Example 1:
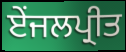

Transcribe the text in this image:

ਏਂਜਲਪ੍ਰੀਤ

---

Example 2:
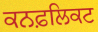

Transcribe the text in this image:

ਕਨਫ਼ਲਿਕਟ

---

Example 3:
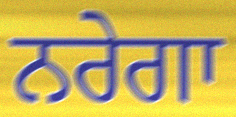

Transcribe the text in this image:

ਨਰੇਗਾ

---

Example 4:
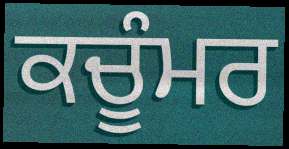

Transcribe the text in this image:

ਕਚੂੰਮਰ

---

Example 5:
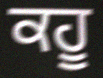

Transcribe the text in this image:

ਕਹੂ